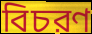
বিচরণ